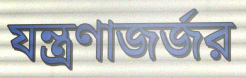
যন্ত্রণাজর্জর